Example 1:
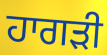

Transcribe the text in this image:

ਹਾਗੜੀ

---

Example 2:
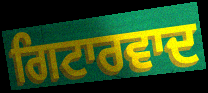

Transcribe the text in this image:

ਗਿਟਾਰਵਾਦ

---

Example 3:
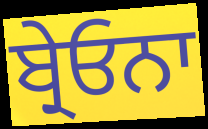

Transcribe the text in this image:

ਬ੍ਰੇਓਨਾ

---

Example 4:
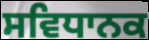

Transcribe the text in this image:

ਸਵਿਧਾਨਕ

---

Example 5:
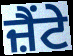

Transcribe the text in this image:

ਜ਼ੈਂਟੇ